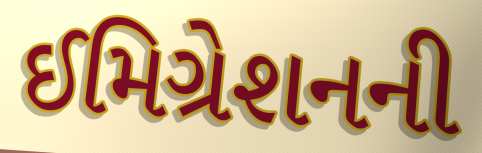
ઈમિગ્રેશનની